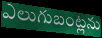
ఎలుగుబంట్లను